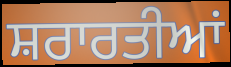
ਸ਼ਰਾਰਤੀਆਂ